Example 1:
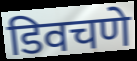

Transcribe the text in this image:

डिवचणे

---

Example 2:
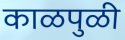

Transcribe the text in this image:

काळपुळी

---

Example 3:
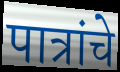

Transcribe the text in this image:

पात्रांचे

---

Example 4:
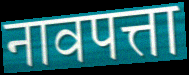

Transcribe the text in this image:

नावपत्ता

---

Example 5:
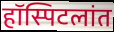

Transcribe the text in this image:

हॉस्पिटलांत